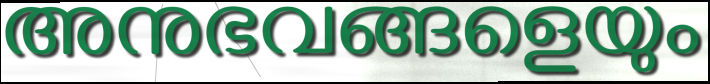
അനുഭവങ്ങളെയും